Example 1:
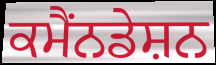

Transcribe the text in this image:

ਕਮੈਂਨਡੇਸ਼ਨ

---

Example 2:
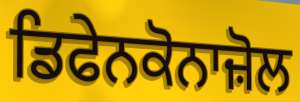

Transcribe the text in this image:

ਡਿਫੇਨਕੋਨਾਜ਼ੋਲ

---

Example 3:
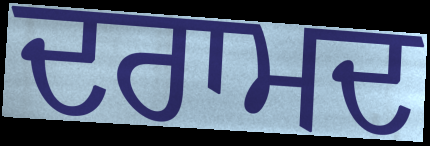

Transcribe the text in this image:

ਦਰਾਮਦ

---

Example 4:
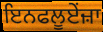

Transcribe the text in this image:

ਇਨਫਲੂਏਂਜ਼ਾ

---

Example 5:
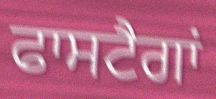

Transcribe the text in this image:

ਫਾਸਟੈਗਾਂ